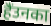
हैंउनका